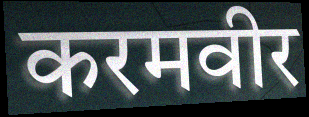
करमवीर